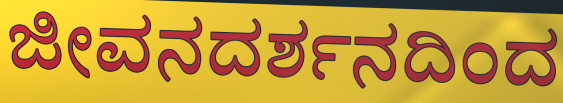
ಜೀವನದರ್ಶನದಿಂದ